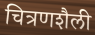
चित्रणशैली